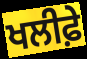
ਖਲੀਫ਼ੇ